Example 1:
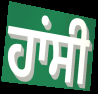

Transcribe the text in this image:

ਹਾਂਸੀ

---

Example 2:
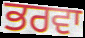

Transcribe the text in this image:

ਭਰਵਾ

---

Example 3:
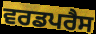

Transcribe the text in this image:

ਵਰਡਪਰੈਸ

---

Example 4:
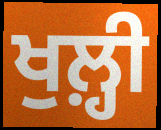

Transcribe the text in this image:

ਖੁਲ਼੍ਹੀ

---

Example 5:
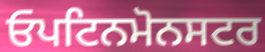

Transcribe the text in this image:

ਓਪਟਿਨਮੋਨਸਟਰ